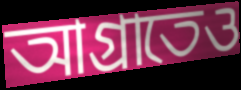
আগ্রাতেও